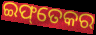
ଇଫ୍‌ତେକର